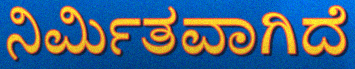
ನಿರ್ಮಿತವಾಗಿದೆ